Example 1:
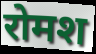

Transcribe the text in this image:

रोमश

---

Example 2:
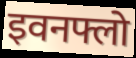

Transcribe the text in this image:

इवनफ्लो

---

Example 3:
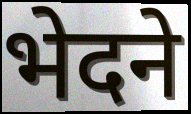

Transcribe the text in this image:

भेदने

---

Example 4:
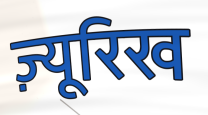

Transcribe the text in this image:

ज़्यूरिख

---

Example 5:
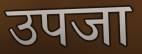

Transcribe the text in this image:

उपजा